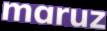
maruz